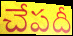
చేపదీ